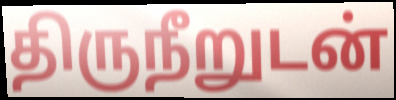
திருநீறுடன்